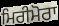
ਮਿਰੀਮੋਰਾ